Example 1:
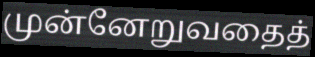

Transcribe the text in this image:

முன்னேறுவதைத்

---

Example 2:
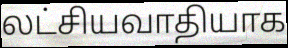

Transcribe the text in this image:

லட்சியவாதியாக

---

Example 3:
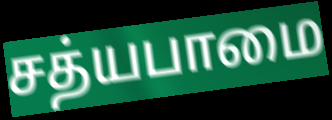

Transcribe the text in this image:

சத்யபாமை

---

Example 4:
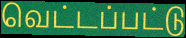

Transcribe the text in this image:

வெட்டப்பட்டு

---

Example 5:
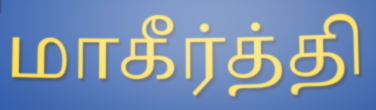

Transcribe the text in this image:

மாகீர்த்தி